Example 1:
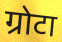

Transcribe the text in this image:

ग्रोटा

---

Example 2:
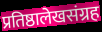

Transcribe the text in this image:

प्रतिष्ठालेखसंग्रह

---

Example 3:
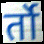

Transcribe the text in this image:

र्तो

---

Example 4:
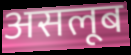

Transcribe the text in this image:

असलूब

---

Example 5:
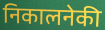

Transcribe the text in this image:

निकालनेकी